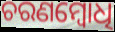
ଚରଣମ୍ବୋଧି